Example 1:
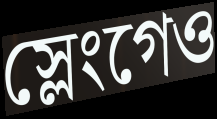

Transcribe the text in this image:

স্লেংগেও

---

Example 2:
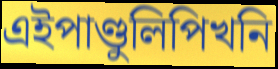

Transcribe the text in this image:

এইপাণ্ডুলিপিখনি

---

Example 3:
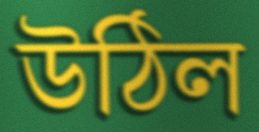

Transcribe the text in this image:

উঠিল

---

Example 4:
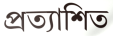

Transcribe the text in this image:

প্ৰত্যাশিত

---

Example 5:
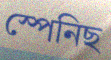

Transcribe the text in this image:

স্পেনিছ